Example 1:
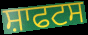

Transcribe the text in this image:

ਸ਼ਾਫਟਸ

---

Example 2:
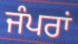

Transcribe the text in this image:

ਜੰਪਰਾਂ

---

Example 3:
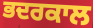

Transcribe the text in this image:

ਭਦਰਕਾਲ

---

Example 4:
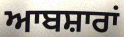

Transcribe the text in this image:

ਆਬਸ਼ਾਰਾਂ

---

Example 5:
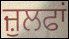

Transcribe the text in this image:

ਜ਼ੁਲਫਾਂ